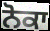
ਨੋਕਾ